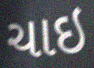
ચાઇ